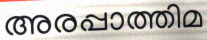
അരപ്പാത്തിമ